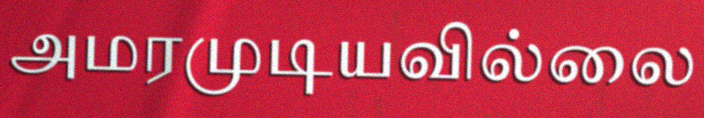
அமரமுடியவில்லை